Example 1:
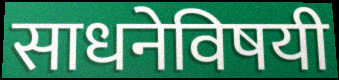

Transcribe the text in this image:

साधनेविषयी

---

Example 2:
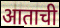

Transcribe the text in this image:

आताची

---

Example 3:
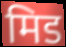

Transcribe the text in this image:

मिड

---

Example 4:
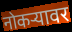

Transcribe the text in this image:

नोकऱ्यावर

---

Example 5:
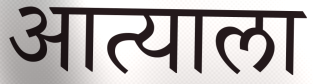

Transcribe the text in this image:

आत्याला